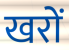
खरों